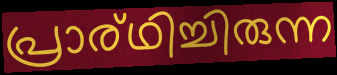
പ്രാര്ഥിച്ചിരുന്ന